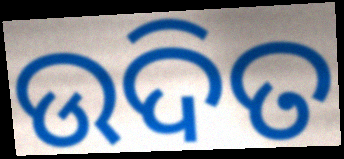
ଉଦିତ